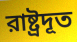
রাষ্ট্রদূত